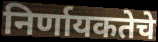
निर्णायकतेचे